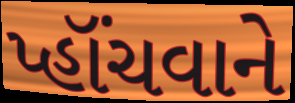
પ્હૉંચવાને